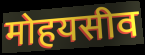
मोहयसीव